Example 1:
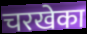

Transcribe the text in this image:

चरखेका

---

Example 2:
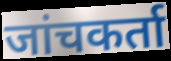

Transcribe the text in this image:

जांचकर्ता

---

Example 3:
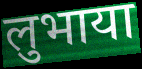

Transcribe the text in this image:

लुभाया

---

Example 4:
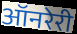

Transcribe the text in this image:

ऑनरेरी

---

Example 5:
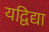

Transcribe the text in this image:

यद्विद्या